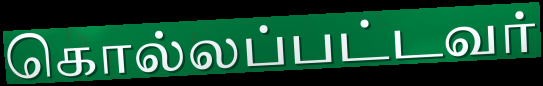
கொல்லப்பட்டவர்